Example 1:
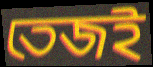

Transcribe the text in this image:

তেজই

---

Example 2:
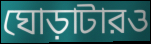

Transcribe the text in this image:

ঘোড়াটারও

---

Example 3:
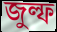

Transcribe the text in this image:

জুল্ফ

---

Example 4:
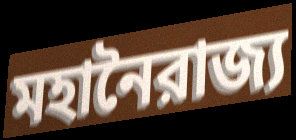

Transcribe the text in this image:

মহানৈরাজ্য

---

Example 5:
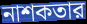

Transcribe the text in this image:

নাশকতার